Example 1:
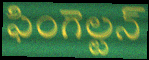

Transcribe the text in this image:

ఫింగెల్టన్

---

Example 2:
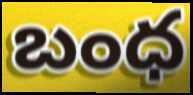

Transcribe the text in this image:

బంధ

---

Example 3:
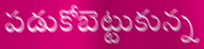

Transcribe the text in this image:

పడుకోబెట్టుకున్న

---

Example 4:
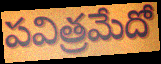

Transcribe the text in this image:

పవిత్రమేదో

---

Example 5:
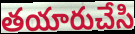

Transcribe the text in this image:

తయారుచేసి